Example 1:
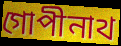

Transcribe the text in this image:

গোপীনাথ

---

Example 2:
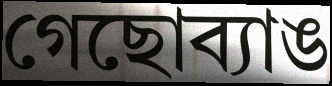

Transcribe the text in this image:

গেছোব্যাঙ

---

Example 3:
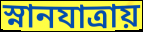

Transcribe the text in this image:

স্নানযাত্রায়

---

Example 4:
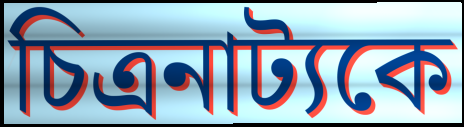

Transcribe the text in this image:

চিত্রনাট্যকে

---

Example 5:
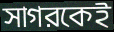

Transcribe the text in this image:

সাগরকেই